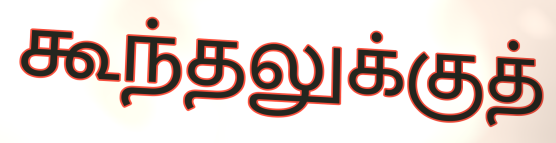
கூந்தலுக்குத்